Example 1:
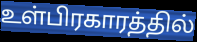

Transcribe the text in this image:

உள்பிரகாரத்தில்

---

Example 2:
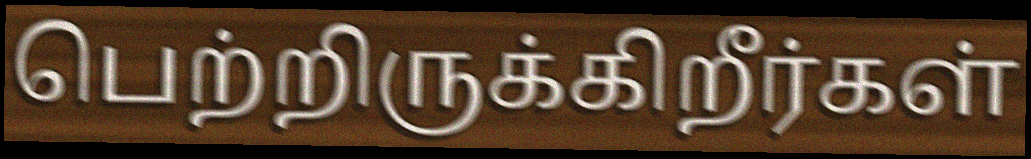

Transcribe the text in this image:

பெற்றிருக்கிறீர்கள்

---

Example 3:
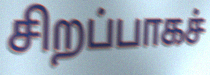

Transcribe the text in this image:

சிறப்பாகச்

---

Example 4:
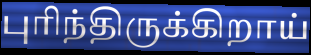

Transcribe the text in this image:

புரிந்திருக்கிறாய்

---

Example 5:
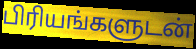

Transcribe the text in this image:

பிரியங்களுடன்